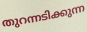
തുറന്നടിക്കുന്ന